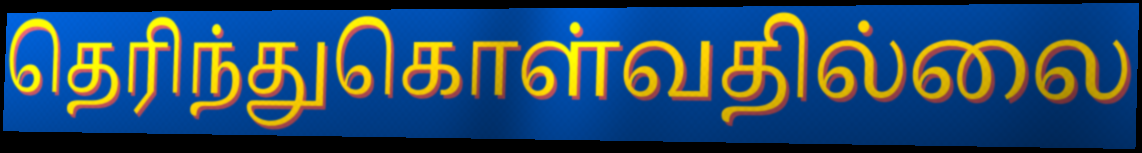
தெரிந்துகொள்வதில்லை